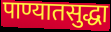
पाण्यातसुद्धा